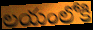
లయంలోకి